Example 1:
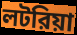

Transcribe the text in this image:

লটরিয়া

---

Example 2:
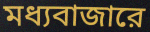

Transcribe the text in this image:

মধ্যবাজারে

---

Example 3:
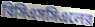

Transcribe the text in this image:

বিসিএসসিএলের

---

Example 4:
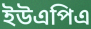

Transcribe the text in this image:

ইউএপিএ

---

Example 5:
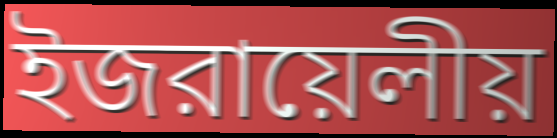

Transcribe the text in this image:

ইজরায়েলীয়